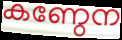
കണ്ഠേന